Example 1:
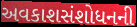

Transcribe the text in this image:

અવકાશસંશોધનની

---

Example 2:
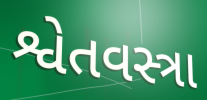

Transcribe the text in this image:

શ્વેતવસ્ત્રા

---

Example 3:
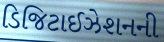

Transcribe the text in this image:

ડિજિટાઈઝેશનની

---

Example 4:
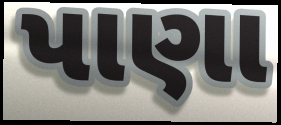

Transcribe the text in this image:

પાણા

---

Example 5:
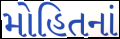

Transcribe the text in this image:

મોહિતનાં